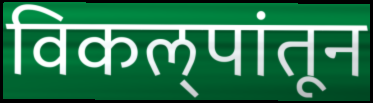
विकल्पांतून